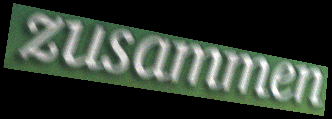
zusammen